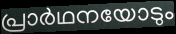
പ്രാർഥനയോടും